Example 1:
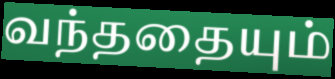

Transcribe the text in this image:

வந்ததையும்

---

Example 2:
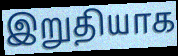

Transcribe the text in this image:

இறுதியாக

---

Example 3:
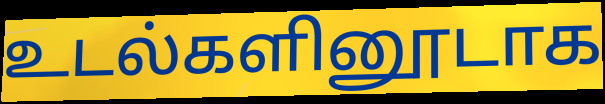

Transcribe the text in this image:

உடல்களினூடாக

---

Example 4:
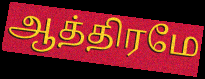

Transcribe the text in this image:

ஆத்திரமே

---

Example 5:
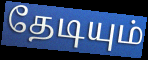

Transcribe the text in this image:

தேடியும்